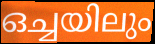
ഒച്ചയിലും